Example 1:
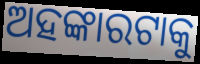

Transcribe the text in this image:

ଅହଙ୍କାରଟାକୁ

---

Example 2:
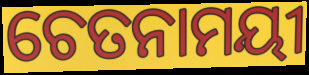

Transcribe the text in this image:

ଚେତନାମୟୀ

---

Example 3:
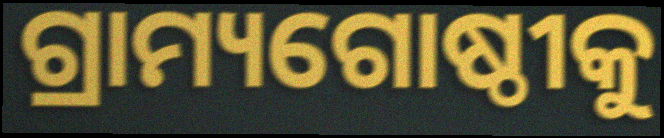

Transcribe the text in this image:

ଗ୍ରାମ୍ୟଗୋଷ୍ଠୀକୁ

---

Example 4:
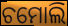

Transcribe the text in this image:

ଚମୋଲି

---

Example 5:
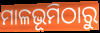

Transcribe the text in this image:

ମାଳଭୂମିଠାରୁ